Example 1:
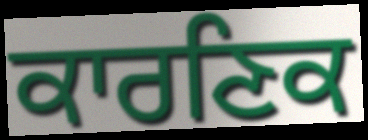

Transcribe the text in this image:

ਕਾਰਣਿਕ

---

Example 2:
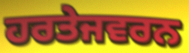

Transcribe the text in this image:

ਹਰਤੇਜਵਰਨ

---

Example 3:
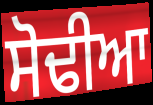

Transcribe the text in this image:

ਸੋਢੀਆ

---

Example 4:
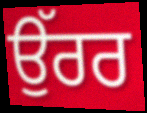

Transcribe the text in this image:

ਉੱਰਰ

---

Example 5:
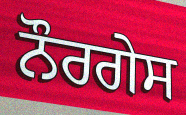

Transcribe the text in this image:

ਨੌਰਗੇਸ